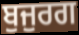
ਬੁਜੁਰਗ